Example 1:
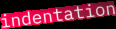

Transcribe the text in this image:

indentation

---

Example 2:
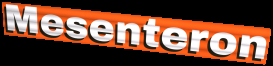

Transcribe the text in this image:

Mesenteron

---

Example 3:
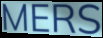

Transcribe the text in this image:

MERS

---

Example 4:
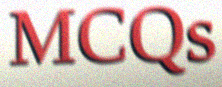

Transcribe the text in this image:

MCQs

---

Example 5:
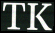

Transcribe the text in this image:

TK